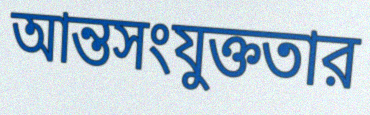
আন্তসংযুক্ততার